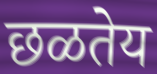
छळतेय